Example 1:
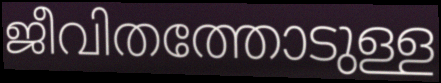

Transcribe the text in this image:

ജീവിതത്തോടുള്ള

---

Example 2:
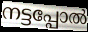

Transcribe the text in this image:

നട്ടപ്പോൽ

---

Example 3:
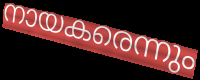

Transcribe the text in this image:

നായകരെന്നും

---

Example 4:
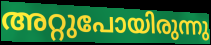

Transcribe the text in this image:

അറ്റുപോയിരുന്നു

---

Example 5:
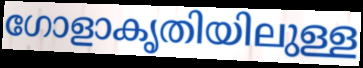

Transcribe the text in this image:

ഗോളാകൃതിയിലുള്ള